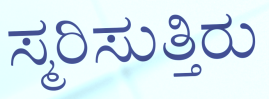
ಸ್ಮರಿಸುತ್ತಿರು